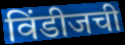
विंडीजची